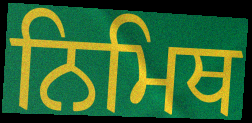
ਨਿਮਿਥ